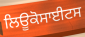
ਲਿਊਕੋਸਾਈਟਸ